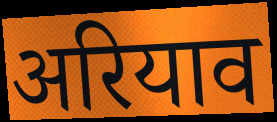
अरियाव